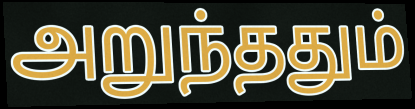
அறுந்ததும்